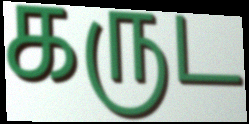
கருட